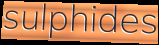
sulphides